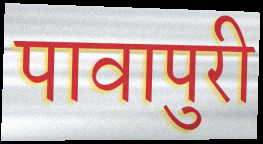
पावापुरी